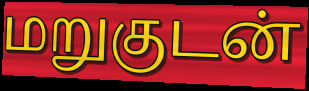
மறுகுடன்